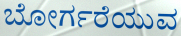
ಬೋರ್ಗರೆಯುವ